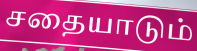
சதையாடும்